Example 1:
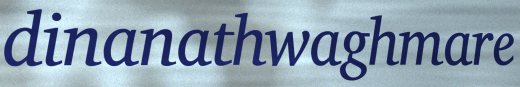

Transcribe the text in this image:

dinanathwaghmare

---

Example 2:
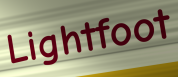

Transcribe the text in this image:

Lightfoot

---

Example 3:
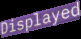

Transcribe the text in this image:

Displayed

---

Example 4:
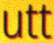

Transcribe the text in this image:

utt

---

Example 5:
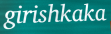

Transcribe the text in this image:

girishkaka